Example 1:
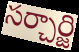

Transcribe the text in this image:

సర్చార్జి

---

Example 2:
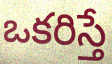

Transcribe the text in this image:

ఒకరిస్తే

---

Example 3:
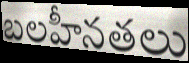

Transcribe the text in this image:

బలహీనతలు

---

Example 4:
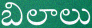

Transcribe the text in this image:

బిలాలు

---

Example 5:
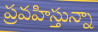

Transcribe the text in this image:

ప్రవహిస్తున్నా